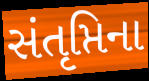
સંતૃપ્તિના